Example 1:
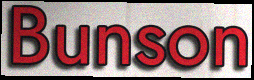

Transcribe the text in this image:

Bunson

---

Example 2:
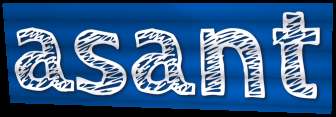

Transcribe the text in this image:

asant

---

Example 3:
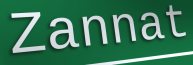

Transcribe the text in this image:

Zannat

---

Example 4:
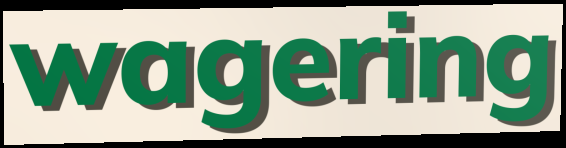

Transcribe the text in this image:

wagering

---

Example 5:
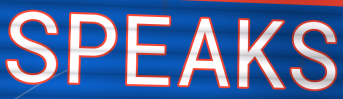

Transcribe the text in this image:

SPEAKS